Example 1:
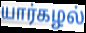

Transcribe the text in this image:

யார்கழல்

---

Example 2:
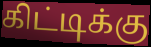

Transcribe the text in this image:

கிட்டிக்கு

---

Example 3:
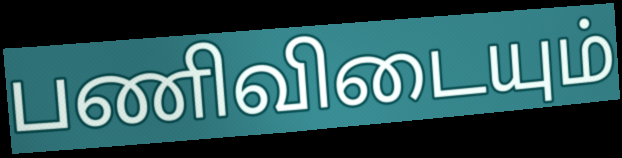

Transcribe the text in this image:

பணிவிடையும்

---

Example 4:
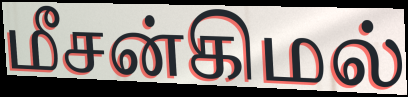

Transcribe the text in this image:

மீசன்கிமல்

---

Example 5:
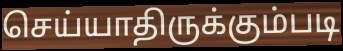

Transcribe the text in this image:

செய்யாதிருக்கும்படி